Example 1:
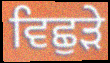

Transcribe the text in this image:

ਵਿਛੁੜੇ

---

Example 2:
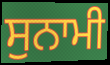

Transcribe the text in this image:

ਸੁਨਾਮੀ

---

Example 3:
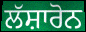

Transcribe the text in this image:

ਲੱਸ਼ਾਰੋਨ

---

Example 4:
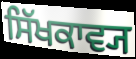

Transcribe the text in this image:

ਸਿੱਖਕਾਵ੍ਯ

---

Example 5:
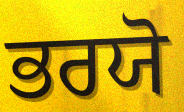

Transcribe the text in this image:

ਭਰਯੋ